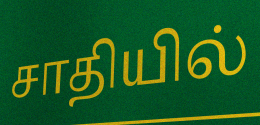
சாதியில்